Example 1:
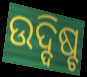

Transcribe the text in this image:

ଉଦ୍ଦିଷ୍ଚ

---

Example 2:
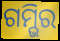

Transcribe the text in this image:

ଗମ୍ଭିର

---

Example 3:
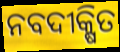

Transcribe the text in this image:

ନବଦୀକ୍ଷିତ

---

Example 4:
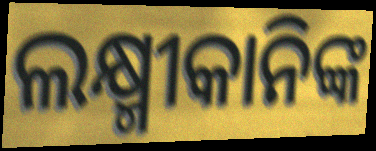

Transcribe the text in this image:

ଲକ୍ଷ୍ମୀକାନିଙ୍କ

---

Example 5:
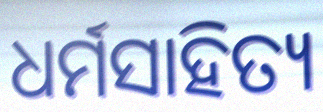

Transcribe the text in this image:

ଧର୍ମସାହିତ୍ୟ